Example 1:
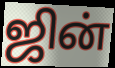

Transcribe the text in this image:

ஜின்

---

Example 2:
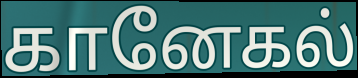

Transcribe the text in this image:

கானேகல்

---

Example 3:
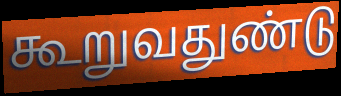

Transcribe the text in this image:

கூறுவதுண்டு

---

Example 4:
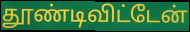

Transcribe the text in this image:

தூண்டிவிட்டேன்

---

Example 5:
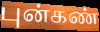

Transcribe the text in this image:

புன்கண்